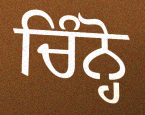
ਚਿੰਨ੍ਹੋ